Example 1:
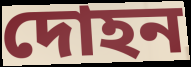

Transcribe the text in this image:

দোহন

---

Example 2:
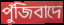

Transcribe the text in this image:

পুঁজিবাদে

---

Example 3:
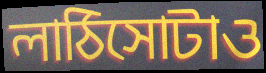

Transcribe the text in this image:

লাঠিসোটাও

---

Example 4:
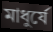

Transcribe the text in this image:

মাধুর্যে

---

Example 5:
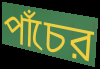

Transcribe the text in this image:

পাঁচের